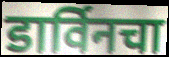
डार्विनचा